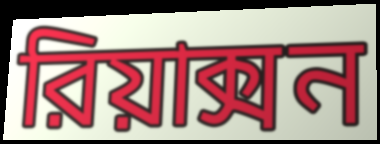
রিয়াক্সন